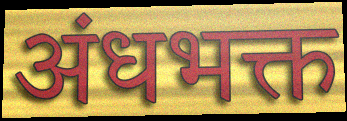
अंधभक्त